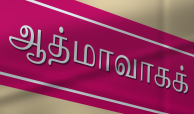
ஆத்மாவாகக்